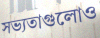
সভ্যতাগুলোও